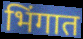
भिंगात